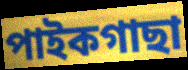
পাইকগাছা